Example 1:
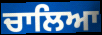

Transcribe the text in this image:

ਚਾਲਿਆ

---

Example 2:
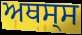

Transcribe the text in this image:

ਅਥਸ੍ਸ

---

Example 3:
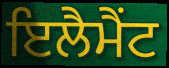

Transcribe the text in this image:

ਇਲੈਮੈਂਟ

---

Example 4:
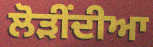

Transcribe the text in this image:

ਲੋੜੀਂਦੀਆ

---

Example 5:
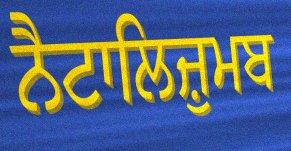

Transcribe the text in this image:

ਨੈਟਾਲਿਜ਼ੁਮਬ